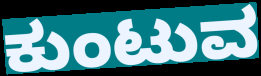
ಕುಂಟುವ